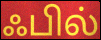
ஃபில்